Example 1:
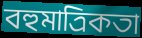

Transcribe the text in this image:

বহুমাত্রিকতা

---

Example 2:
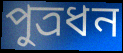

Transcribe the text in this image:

পুত্রধন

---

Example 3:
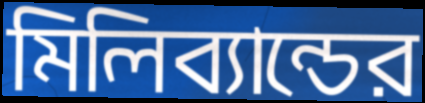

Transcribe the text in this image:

মিলিব্যান্ডের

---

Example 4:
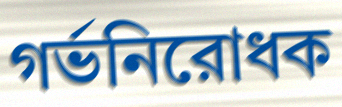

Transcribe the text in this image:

গর্ভনিরোধক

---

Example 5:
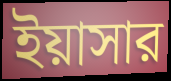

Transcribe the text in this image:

ইয়াসার